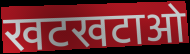
खटखटाओ